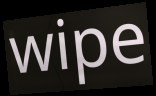
wipe